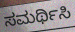
ಸಮರ್ಥಿಸಿ